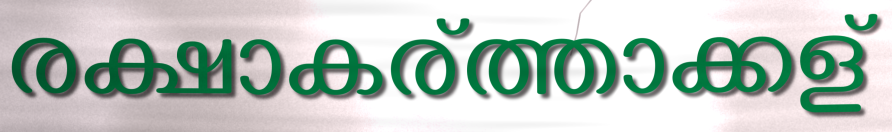
രക്ഷാകര്ത്താക്കള്